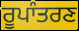
ਰੂਪਾੰਤਰਣ